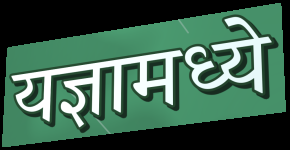
यज्ञामध्ये